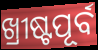
ଖ୍ରୀଷ୍ଟପୂର୍ବ